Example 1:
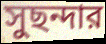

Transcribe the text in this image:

সুছন্দার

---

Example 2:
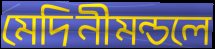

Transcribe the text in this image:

মেদিনীমন্ডলে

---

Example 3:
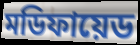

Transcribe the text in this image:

মডিফায়েড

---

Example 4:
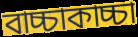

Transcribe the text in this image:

বাচ্চাকাচ্চা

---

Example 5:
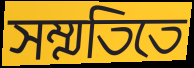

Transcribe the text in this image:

সম্মতিতে